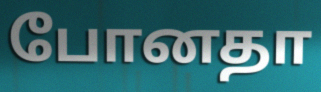
போனதா